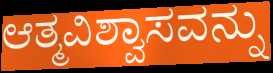
ಆತ್ಮವಿಶ್ವಾಸವನ್ನು